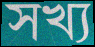
সখ্য